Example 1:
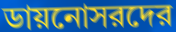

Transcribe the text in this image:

ডায়নোসরদের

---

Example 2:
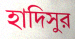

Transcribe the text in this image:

হাদিসুর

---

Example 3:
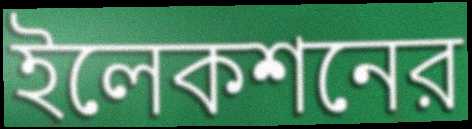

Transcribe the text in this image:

ইলেকশনের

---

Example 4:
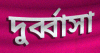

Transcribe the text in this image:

দুর্ব্বাসা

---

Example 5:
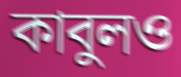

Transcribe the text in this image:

কাবুলও